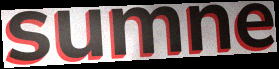
sumne